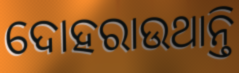
ଦୋହରାଉଥାନ୍ତି